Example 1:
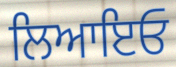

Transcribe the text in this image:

ਲਿਆਇਓ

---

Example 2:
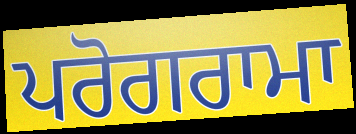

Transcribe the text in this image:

ਪਰੋਗਰਾਮਾ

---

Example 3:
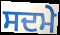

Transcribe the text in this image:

ਸਦਮੇ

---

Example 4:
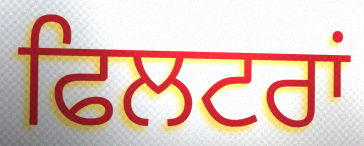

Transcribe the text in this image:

ਫਿਲਟਰਾਂ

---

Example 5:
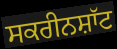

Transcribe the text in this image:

ਸਕਰੀਨਸ਼ਾੱਟ